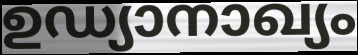
ഉഡ്യാനാഖ്യം